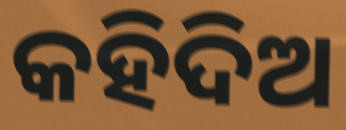
କହିଦିଅ